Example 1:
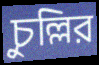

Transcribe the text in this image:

চুল্লির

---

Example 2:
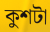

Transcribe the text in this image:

কুশটা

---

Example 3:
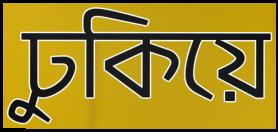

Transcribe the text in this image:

ঢুকিয়ে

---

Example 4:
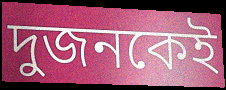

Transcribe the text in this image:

দুজনকেই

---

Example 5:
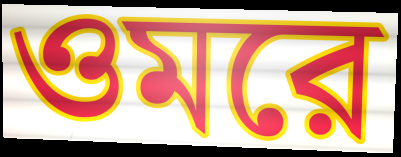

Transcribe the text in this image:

ওমরে